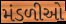
મંડળીઓ